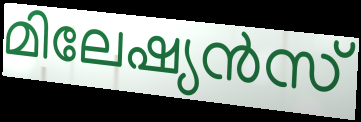
മിലേഷ്യൻസ്